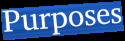
Purposes